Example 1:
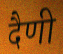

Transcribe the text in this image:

दैणी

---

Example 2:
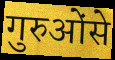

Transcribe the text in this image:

गुरुओंसे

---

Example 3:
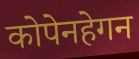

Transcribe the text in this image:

कोपेनहेगन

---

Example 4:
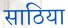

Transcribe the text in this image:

साठिया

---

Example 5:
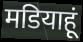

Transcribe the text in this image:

मडियाहूं